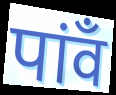
पांँव